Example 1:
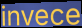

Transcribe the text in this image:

invece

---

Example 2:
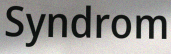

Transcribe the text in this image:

Syndrom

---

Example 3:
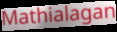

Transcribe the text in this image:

Mathialagan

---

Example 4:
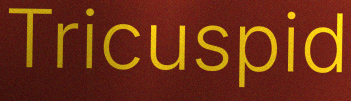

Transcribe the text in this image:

Tricuspid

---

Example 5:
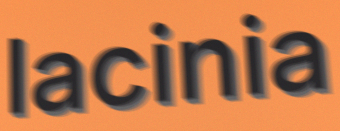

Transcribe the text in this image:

lacinia